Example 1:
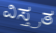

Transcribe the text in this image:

ವಿಸ್ತ್ರತ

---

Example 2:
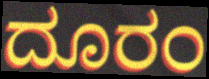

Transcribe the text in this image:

ದೂರಂ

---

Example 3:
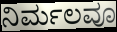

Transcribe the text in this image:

ನಿರ್ಮಲವೂ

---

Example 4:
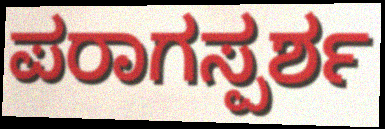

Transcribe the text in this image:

ಪರಾಗಸ್ಪರ್ಶ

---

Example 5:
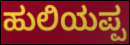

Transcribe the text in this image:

ಹುಲಿಯಪ್ಪ